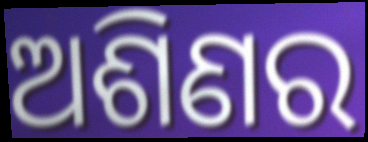
ଅଶିଣର